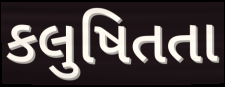
કલુષિતતા